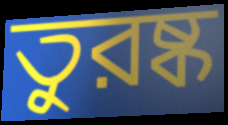
তুরষ্ক